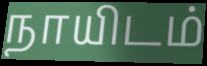
நாயிடம்